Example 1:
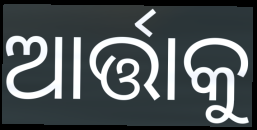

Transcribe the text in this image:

ଆର୍ତ୍ତାକୁ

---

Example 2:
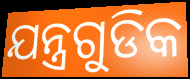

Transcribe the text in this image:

ଯନ୍ତ୍ରଗୁଡିକ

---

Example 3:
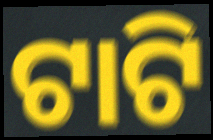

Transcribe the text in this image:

ଟାଟି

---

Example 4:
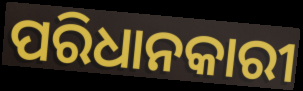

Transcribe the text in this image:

ପରିଧାନକାରୀ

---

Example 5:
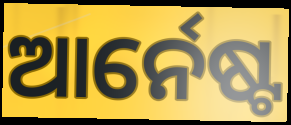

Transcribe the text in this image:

ଆର୍ନେଷ୍ଟ